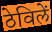
ठेविलें